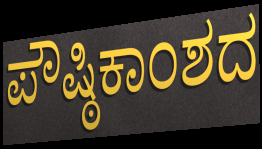
ಪೌಷ್ಠಿಕಾಂಶದ